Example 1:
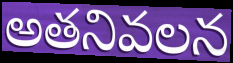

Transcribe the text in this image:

అతనివలన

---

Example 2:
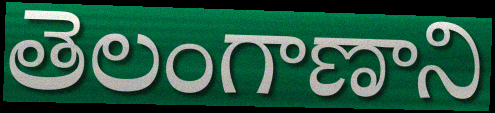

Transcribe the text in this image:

తెలంగాణాని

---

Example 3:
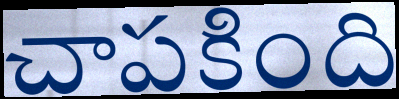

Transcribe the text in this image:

చాపకింది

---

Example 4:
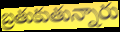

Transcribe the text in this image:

బ్రతుకుతున్నారు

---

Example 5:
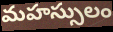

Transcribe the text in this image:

మహస్సులం